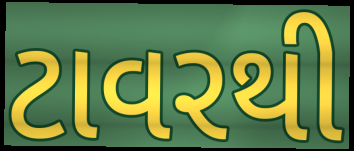
ટાવરથી